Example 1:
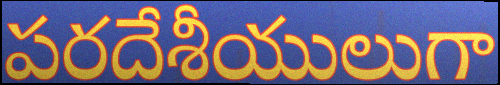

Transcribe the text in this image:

పరదేశీయులుగా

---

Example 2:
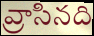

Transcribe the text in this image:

వ్రాసినది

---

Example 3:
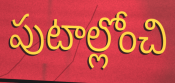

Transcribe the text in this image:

పుటాల్లోంచి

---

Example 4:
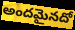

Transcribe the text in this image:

అందమైనదో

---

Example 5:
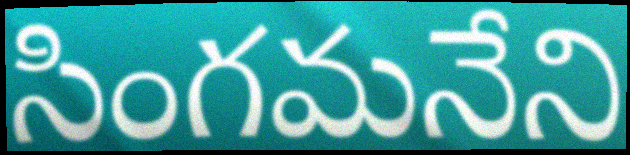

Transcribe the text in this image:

సింగమనేని